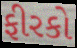
ફીરકો